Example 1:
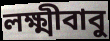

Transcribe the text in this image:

লক্ষ্মীবাবু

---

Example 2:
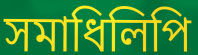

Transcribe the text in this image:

সমাধিলিপি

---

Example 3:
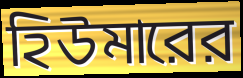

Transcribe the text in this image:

হিউমারের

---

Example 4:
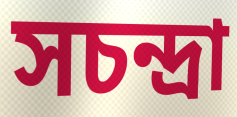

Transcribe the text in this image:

সচন্দ্রা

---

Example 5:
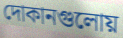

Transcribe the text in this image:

দোকানগুলোয়